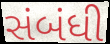
સંબંધી